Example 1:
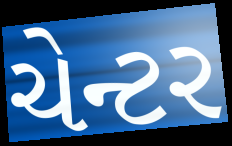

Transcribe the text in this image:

ચેન્ટર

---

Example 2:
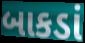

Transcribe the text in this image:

બાકડાં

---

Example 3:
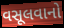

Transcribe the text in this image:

વસૂલવાનો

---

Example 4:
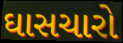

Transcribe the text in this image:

ઘાસચારો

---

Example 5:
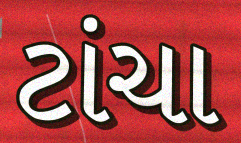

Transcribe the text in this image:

ટાંચા